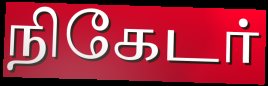
நிகேடர்